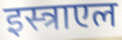
इस्त्राएल